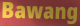
Bawang